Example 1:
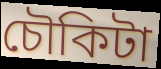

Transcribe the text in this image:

চৌকিটা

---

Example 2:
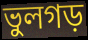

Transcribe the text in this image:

ভুলগড়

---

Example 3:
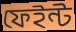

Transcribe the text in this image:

ফেইন্ট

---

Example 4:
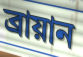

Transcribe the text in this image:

ব্রায়ান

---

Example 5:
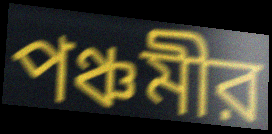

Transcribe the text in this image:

পঞ্চমীর